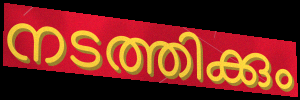
നടത്തിക്കും